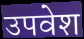
उपवेश